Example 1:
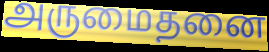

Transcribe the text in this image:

அருமைதனை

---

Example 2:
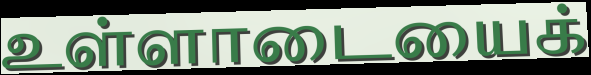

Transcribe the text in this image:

உள்ளாடையைக்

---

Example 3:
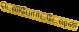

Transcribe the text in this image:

டெலிபோர்ட்டேஷன்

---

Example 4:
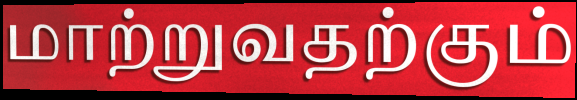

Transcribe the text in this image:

மாற்றுவதற்கும்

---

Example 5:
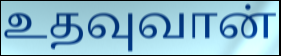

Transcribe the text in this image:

உதவுவான்